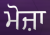
ਮੋਜ਼ਾ